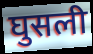
घुसली